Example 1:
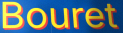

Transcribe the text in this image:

Bouret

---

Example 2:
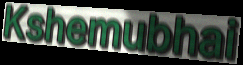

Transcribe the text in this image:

Kshemubhai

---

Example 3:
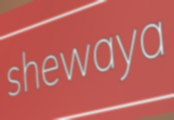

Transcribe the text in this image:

shewaya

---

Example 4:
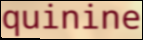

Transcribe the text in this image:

quinine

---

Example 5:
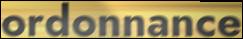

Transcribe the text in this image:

ordonnance